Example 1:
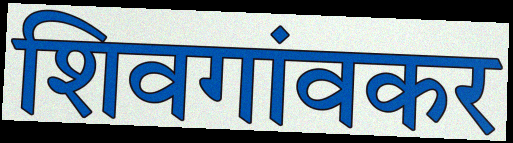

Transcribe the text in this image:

शिवगांवकर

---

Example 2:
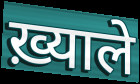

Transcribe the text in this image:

ख़्याले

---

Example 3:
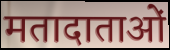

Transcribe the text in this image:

मतादाताओं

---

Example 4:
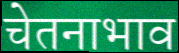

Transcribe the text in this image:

चेतनाभाव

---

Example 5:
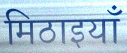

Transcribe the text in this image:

मिठाइयाँ